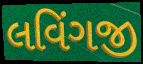
લવિંગજી